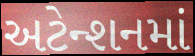
અટેન્શનમાં